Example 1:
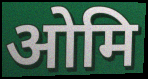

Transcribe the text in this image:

ओमि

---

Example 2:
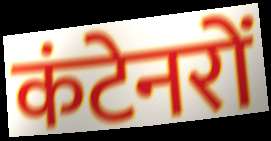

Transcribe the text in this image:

कंटेनरों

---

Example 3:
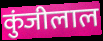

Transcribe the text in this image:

कुंजीलाल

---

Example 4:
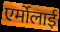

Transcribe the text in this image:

एर्मोलाई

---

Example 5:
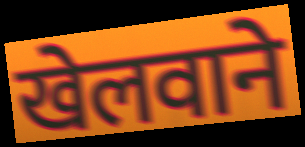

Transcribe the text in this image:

खेलवाने